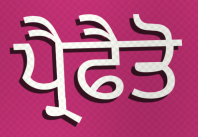
ਪ੍ਰੈਫੈਤੋ